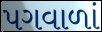
પગવાળાં